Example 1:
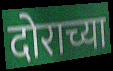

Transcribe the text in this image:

दोराच्या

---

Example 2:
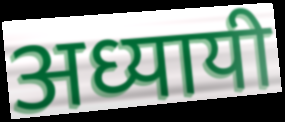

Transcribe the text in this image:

अध्यायी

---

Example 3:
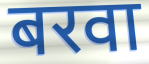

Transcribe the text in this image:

बरवा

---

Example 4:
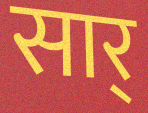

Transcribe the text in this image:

सार्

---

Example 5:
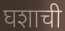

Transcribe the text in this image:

घशाची